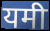
यमी